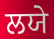
ਲਯੇ